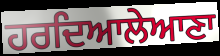
ਹਰਦਿਆਲੇਆਣਾ